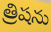
త్రిషను